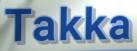
Takka